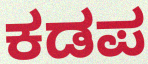
ಕಡಪ